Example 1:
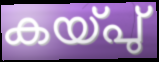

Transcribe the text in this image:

കയ്പു്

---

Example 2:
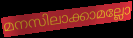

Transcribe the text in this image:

മനസിലാക്കാമല്ലോ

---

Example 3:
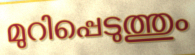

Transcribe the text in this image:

മുറിപ്പെടുത്തും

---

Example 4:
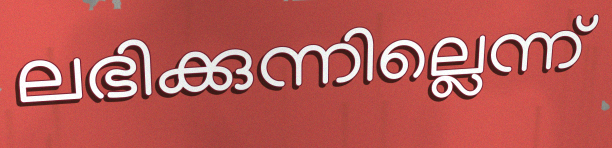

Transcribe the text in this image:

ലഭിക്കുന്നില്ലെന്ന്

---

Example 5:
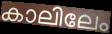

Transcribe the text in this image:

കാലിലേം